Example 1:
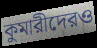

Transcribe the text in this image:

কুমারীদেরও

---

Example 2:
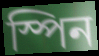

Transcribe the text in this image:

স্পিন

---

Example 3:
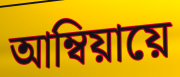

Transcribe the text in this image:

আম্বিয়ায়ে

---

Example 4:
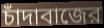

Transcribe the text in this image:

চাঁদাবাজের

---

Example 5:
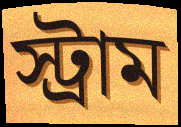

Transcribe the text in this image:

স্ট্রাম